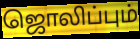
ஜொலிப்பும்